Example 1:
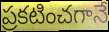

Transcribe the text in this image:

ప్రకటించగానే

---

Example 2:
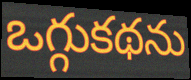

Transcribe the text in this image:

ఒగ్గుకథను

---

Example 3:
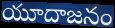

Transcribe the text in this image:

యూదాజనం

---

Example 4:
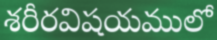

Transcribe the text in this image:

శరీరవిషయములో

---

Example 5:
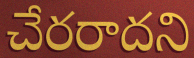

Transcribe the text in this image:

చేరరాదని